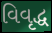
વિવૃદ્ધ